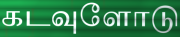
கடவுளோடு